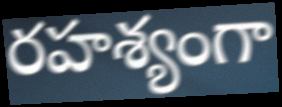
రహశ్యంగా